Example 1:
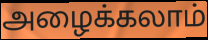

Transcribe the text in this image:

அழைக்கலாம்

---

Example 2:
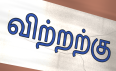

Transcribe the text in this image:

விற்றற்கு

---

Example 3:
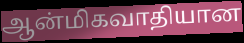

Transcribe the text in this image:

ஆன்மிகவாதியான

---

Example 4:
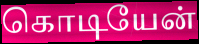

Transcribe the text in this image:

கொடியேன்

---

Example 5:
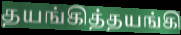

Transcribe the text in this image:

தயங்கித்தயங்கி